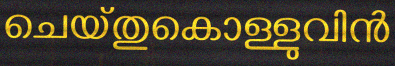
ചെയ്തുകൊള്ളുവിൻ